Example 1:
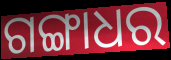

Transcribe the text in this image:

ଗଙ୍ଗାଧର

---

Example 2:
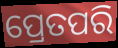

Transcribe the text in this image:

ପ୍ରେତପରି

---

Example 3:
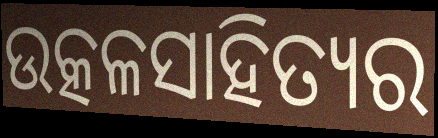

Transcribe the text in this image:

ଉତ୍କଳସାହିତ୍ୟର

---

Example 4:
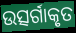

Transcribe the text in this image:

ଉତ୍ସର୍ଗାକୃତ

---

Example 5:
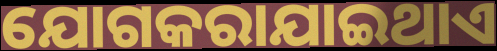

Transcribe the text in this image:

ଯୋଗକରାଯାଇଥାଏ